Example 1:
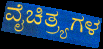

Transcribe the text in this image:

ವೈಚಿತ್ರ್ಯಗಳ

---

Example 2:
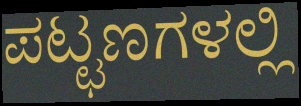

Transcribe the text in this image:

ಪಟ್ಟಣಗಳಲ್ಲಿ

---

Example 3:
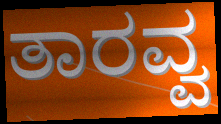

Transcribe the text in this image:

ತಾರವ್ವ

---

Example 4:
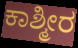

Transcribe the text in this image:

ಕಾಶ್ಮೀರ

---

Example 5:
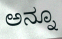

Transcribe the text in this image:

ಅನ್ನೂ